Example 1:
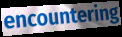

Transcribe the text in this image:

encountering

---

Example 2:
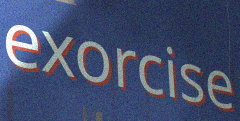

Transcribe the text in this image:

exorcise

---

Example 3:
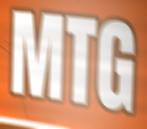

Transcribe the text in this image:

MTG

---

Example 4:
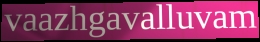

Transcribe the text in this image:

vaazhgavalluvam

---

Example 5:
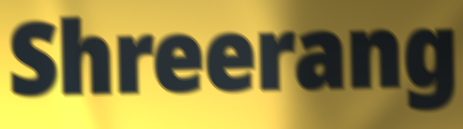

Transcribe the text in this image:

Shreerang